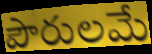
పౌరులమే